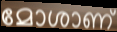
മോശാണ്